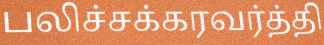
பலிச்சக்கரவர்த்தி